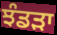
ਝੰਡੜਾ